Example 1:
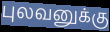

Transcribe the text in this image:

புலவனுக்கு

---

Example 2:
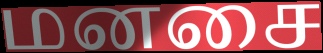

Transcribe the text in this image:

மனசை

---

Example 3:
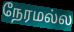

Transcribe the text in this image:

நேரமல்ல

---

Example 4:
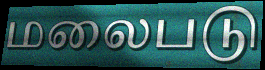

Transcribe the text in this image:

மலைபடு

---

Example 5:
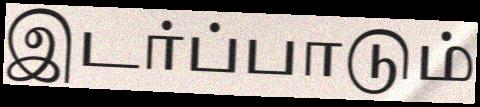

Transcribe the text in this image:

இடர்ப்பாடும்